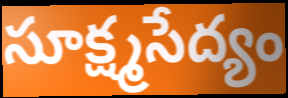
సూక్ష్మసేద్యం